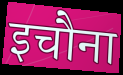
इचौना